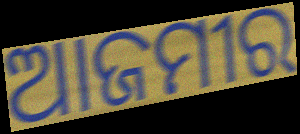
ଆଜମୀର